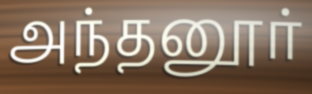
அந்தனூர்